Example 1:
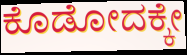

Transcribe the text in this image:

ಕೊಡೋದಕ್ಕೇ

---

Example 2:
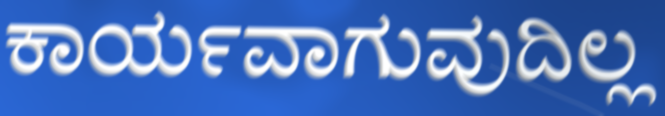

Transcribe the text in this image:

ಕಾರ್ಯವಾಗುವುದಿಲ್ಲ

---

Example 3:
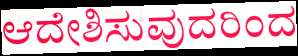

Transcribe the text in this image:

ಆದೇಶಿಸುವುದರಿಂದ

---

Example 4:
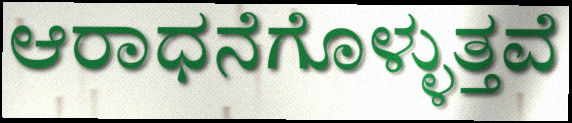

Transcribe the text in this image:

ಆರಾಧನೆಗೊಳ್ಳುತ್ತವೆ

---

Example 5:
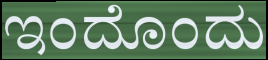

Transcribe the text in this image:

ಇಂದೊಂದು